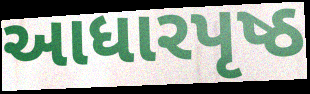
આધારપૃષ્ઠ